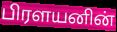
பிரளயனின்